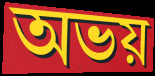
অভয়